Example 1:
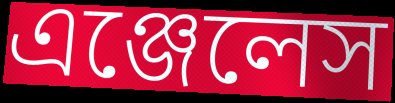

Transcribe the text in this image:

এঞ্জেলেস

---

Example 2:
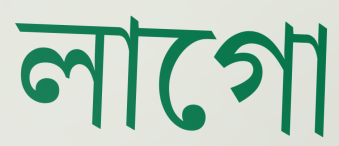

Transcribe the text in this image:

লাগো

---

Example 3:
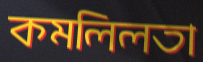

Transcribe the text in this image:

কমলিলতা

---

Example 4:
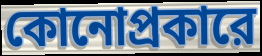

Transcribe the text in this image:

কোনোপ্রকারে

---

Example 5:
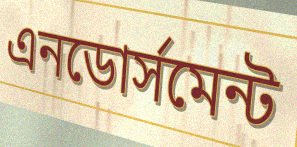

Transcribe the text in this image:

এনডোর্সমেন্ট